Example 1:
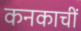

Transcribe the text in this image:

कनकाचीं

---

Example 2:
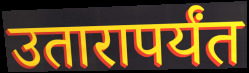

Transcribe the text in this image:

उतारापर्यंत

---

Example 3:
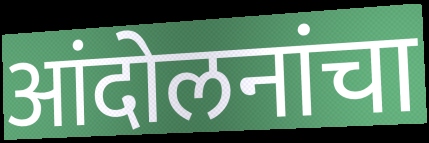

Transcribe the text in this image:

आंदोलनांचा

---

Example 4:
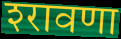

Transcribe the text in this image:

श्रावणा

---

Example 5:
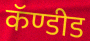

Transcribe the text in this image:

कॅण्डीड